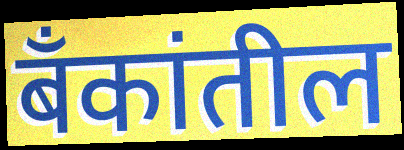
बॅंकांतील